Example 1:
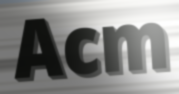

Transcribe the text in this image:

Acm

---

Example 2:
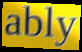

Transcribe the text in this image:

ably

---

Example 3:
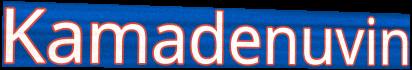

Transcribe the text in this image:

Kamadenuvin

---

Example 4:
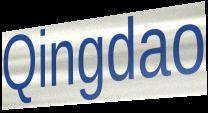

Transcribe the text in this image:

Qingdao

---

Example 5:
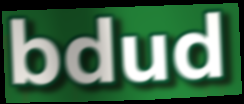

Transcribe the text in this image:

bdud